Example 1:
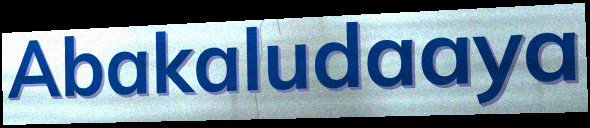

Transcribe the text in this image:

Abakaludaaya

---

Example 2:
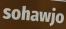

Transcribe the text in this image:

sohawjo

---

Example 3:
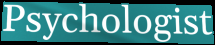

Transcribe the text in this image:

Psychologist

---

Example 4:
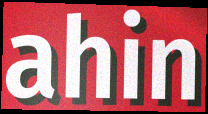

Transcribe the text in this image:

ahin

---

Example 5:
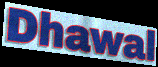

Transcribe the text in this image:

Dhawal